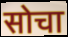
सोचा